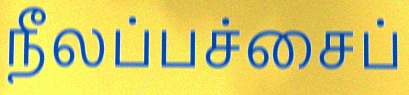
நீலப்பச்சைப்